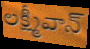
లక్ష్మీవాన్